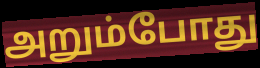
அறும்போது